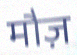
मौज़